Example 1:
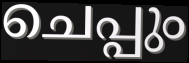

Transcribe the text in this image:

ചെപ്പും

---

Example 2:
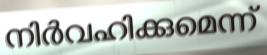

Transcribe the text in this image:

നിർവഹിക്കുമെന്ന്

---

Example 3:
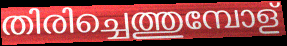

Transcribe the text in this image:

തിരിച്ചെത്തുമ്പോള്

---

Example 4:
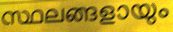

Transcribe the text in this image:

സ്ഥലങ്ങളായും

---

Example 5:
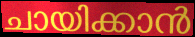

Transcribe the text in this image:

ചായിക്കാൻ